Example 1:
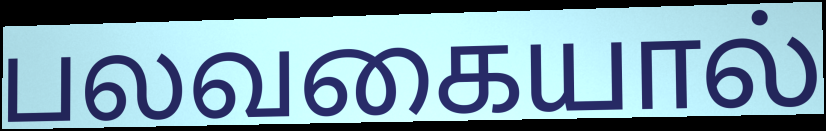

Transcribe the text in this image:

பலவகையால்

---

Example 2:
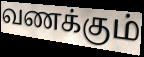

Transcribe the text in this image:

வணக்கும்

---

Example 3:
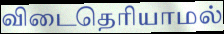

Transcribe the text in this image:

விடைதெரியாமல்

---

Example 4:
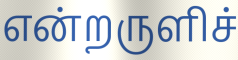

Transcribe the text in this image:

என்றருளிச்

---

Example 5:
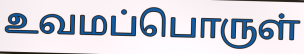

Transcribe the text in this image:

உவமப்பொருள்